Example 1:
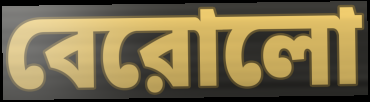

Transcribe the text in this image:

বেরোলো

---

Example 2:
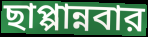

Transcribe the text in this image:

ছাপ্পান্নবার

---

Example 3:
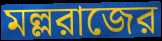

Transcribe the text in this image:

মল্লরাজের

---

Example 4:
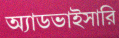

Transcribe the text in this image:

অ্যাডভাইসারি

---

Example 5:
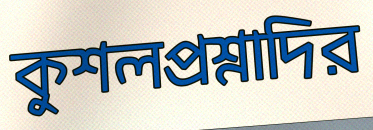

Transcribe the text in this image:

কুশলপ্রশ্নাদির